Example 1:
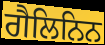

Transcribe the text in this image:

ਗੈਲਿਨਿਨ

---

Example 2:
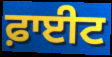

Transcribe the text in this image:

ਫ਼ਾਈਟ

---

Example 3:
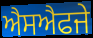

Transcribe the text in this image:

ਐਸਐਫਜੇ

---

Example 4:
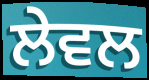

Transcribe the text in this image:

ਲੇਵਲ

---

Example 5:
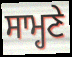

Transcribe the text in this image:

ਸਾਮ੍ਹਣੇ